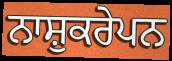
ਨਾਸ਼ੁਕਰੇਪਨ